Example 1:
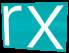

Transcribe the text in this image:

rx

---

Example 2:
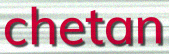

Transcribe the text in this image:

chetan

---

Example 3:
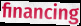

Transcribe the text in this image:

financing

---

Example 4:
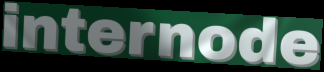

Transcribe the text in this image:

internode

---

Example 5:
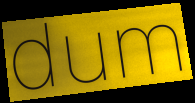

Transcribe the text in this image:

dum